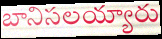
బానిసలయ్యారు